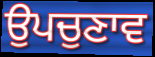
ਉਪਚੁਣਾਵ